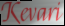
Kevari